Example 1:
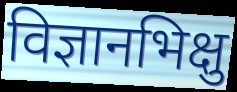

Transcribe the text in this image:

विज्ञानभिक्षु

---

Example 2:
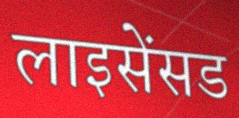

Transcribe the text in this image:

लाइसेंसड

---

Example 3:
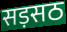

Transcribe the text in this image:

सड़सठ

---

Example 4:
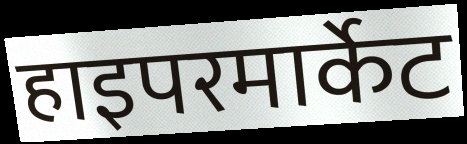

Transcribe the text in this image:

हाइपरमार्केट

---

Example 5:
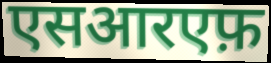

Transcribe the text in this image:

एसआरएफ़